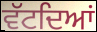
ਵੱਟਦਿਆਂ